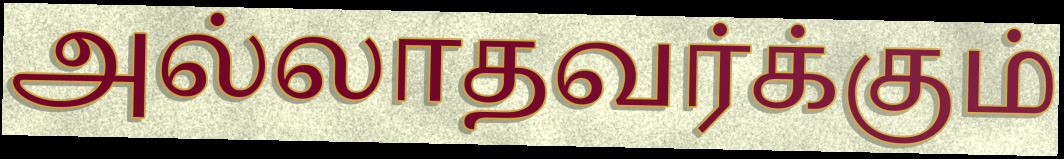
அல்லாதவர்க்கும்